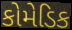
કોમેડિક